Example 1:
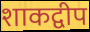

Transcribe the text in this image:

शाकद्वीप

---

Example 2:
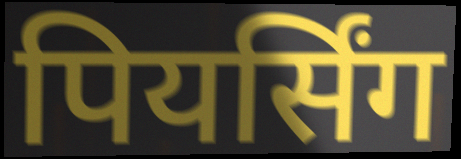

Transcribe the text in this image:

पियर्सिंग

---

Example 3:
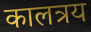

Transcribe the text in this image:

कालत्रय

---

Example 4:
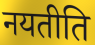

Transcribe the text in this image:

नयतीति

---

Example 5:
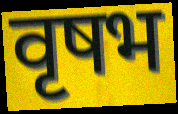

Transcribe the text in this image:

वृषभ